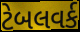
ટેબલવર્ક